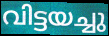
വിട്ടയച്ചു